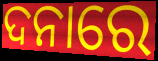
ଦନାରେ